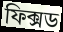
ফিক্সড